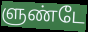
ளுண்டே